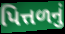
પિત્તળનું